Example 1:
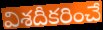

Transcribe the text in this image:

విశదీకరించే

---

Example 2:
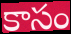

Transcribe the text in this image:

కాసం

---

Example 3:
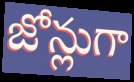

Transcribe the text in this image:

జోన్లుగా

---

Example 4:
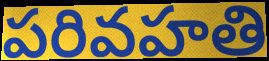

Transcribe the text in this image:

పరివహతి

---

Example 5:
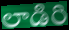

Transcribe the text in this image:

లాడిరి